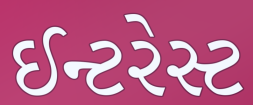
ઈન્ટરેસ્ટ